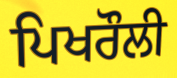
ਪਿਖਰੌਲੀ